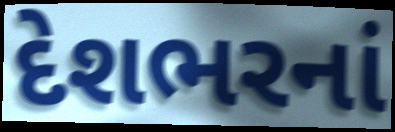
દેશભરનાં